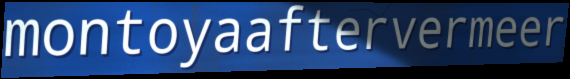
montoyaaftervermeer